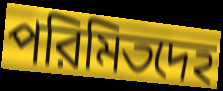
পরিমিতদেহ